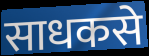
साधकसे